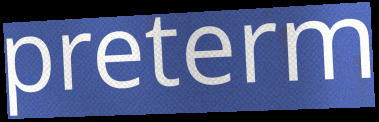
preterm